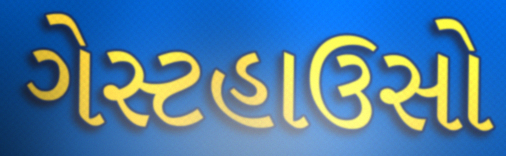
ગેસ્ટહાઉસો